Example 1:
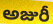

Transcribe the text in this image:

అజురీ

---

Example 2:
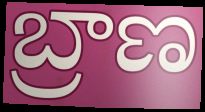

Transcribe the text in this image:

బ్రాణ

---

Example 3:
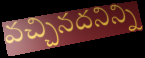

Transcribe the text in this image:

వచ్చినదనిన్ని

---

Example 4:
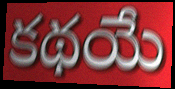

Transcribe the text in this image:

కథయే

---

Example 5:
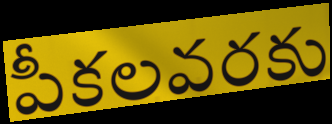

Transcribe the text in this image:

పీకలవరకు